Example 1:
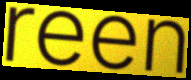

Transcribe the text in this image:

reen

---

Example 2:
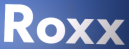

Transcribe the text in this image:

Roxx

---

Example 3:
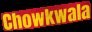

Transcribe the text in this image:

Chowkwala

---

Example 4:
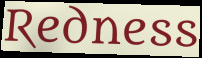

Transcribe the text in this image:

Redness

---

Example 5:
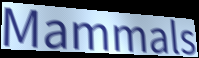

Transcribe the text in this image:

Mammals